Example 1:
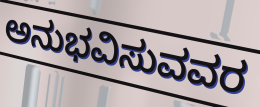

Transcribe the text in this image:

ಅನುಭವಿಸುವವರ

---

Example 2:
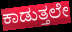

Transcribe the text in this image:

ಕಾಡುತ್ತಲೇ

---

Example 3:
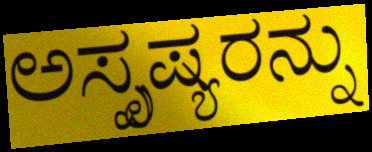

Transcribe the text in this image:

ಅಸ್ಪೃಷ್ಯರನ್ನು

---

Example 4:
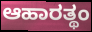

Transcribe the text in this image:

ಆಹಾರತ್ಥಂ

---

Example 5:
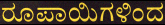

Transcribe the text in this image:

ರೂಪಾಯಿಗಳಿಂದ